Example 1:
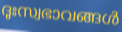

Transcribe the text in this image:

ദുഃസ്വഭാവങ്ങൾ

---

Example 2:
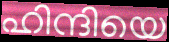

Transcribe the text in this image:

ഹിന്ദിയെ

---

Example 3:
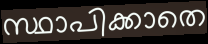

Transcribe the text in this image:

സ്ഥാപിക്കാതെ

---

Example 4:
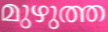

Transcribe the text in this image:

മുഴുത്ത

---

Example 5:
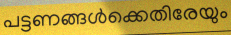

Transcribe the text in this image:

പട്ടണങ്ങൾക്കെതിരേയും